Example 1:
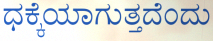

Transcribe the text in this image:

ಧಕ್ಕೆಯಾಗುತ್ತದೆಂದು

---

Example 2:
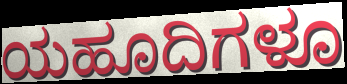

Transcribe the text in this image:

ಯಹೂದಿಗಳೂ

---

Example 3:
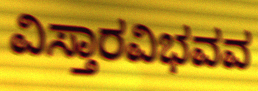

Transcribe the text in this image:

ವಿಸ್ತಾರವಿಭವವ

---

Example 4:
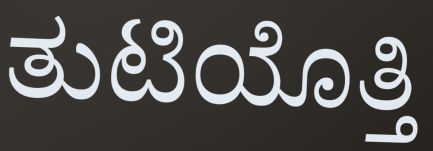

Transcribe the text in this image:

ತುಟಿಯೊತ್ತಿ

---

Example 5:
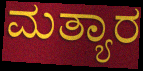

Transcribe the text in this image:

ಮತ್ಯಾರ